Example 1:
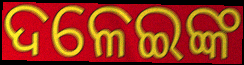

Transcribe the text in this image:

ଦଳେଇଙ୍କ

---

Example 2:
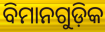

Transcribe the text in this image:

ବିମାନଗୁଡ଼ିକ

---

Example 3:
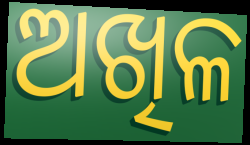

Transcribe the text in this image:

ଅଖିଳ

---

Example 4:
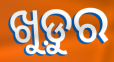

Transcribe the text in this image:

ଖୁଡ଼ୁର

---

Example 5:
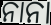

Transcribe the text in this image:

ନାନା